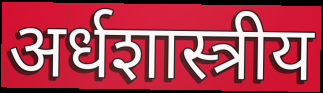
अर्धशास्त्रीय